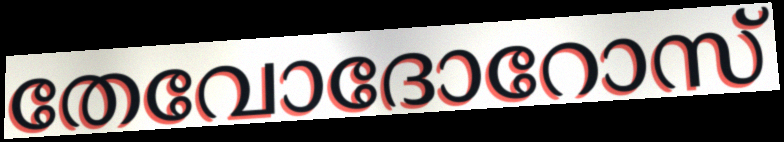
തേവോദോറോസ്